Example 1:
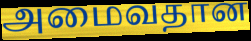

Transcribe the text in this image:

அமைவதான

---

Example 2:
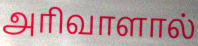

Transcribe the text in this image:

அரிவாளால்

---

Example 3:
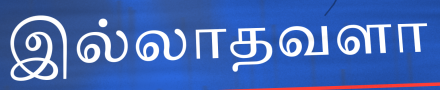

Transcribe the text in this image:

இல்லாதவளா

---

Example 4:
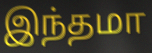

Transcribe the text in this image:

இந்தமா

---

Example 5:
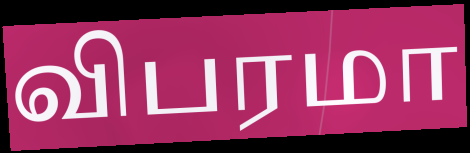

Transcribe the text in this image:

விபரமா